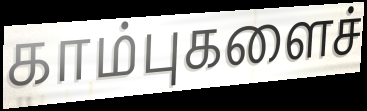
காம்புகளைச்